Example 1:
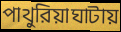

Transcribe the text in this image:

পাথুরিয়াঘাটায়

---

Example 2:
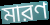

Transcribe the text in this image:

মারণ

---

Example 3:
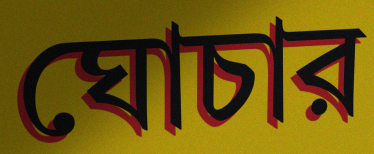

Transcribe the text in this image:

ঘোচার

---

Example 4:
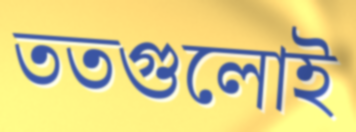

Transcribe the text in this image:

ততগুলোই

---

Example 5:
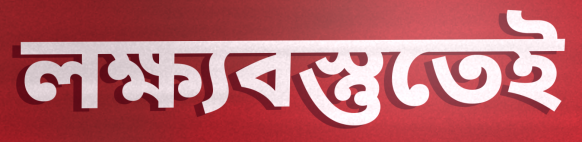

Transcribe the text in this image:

লক্ষ্যবস্তুতেই